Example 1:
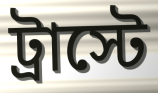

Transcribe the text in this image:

ট্রাস্টে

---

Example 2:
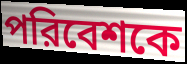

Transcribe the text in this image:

পরিবেশকে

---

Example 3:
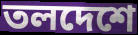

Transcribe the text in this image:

তলদেশে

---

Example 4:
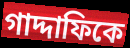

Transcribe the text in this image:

গাদ্দাফিকে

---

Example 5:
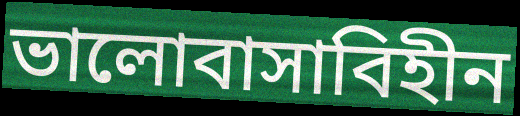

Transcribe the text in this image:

ভালোবাসাবিহীন